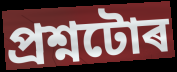
প্ৰশ্নটোৰ